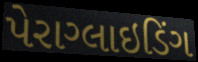
પેરાગ્લાઇડિંગ